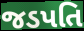
જડપતિ